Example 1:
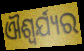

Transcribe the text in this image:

ଐଶ୍ୱର୍ଯ୍ୟର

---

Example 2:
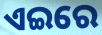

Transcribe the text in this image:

ଏଇରେ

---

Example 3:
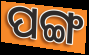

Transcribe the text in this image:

ପଙ୍ଗ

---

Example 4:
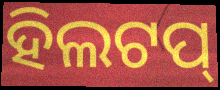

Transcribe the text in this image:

ହିଲଟପ୍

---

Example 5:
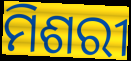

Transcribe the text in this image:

ମିଶରୀ